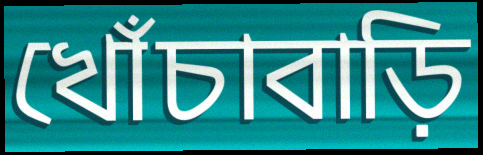
খোঁচাবাড়ি